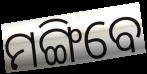
ମଙ୍ଗିବେ